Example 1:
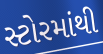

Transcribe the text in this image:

સ્ટોરમાંથી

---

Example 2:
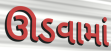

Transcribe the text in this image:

ઊડવામાં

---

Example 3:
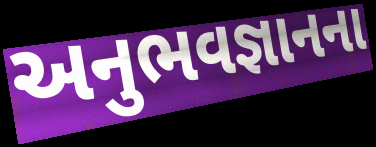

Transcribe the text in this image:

અનુભવજ્ઞાનના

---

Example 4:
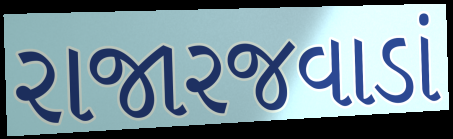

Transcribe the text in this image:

રાજારજવાડાં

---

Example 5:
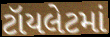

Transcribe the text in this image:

ટૉયલેટમાં